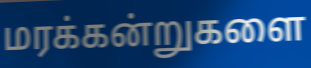
மரக்கன்றுகளை